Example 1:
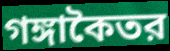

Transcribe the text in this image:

গঙ্গাকৈতর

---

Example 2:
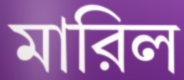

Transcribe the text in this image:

মারিল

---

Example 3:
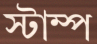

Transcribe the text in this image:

স্টাম্প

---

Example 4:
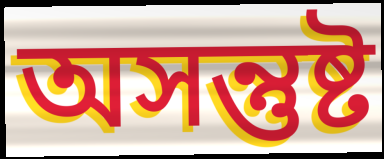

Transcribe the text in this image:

অসন্তুষ্ট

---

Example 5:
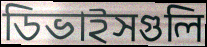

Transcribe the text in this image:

ডিভাইসগুলি